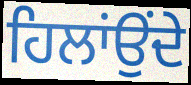
ਹਿਲਾਂਉਂਦੇ